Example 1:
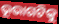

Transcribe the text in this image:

ଭୂଭାଗଟିକୁ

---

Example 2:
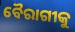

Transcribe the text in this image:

ବୈରାଗୀକୁ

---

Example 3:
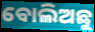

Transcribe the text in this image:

ବୋଲିଅଛୁ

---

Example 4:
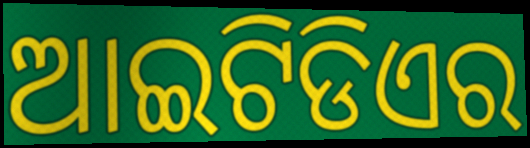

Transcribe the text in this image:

ଆଇଟିଡିଏର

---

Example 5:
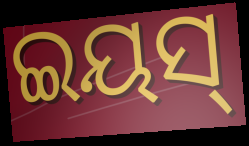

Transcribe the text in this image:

ଇୟସ୍